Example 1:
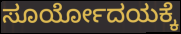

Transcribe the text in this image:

ಸೂರ್ಯೋದಯಕ್ಕೆ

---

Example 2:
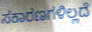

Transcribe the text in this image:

ಸಕಾರಣಗಳಿಲ್ಲದೆ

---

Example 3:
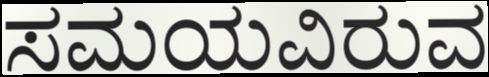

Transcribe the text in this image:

ಸಮಯವಿರುವ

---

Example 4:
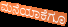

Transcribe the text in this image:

ಮನೆಯಾಕೆಗೂ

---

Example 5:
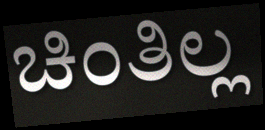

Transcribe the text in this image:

ಚಿಂತಿಲ್ಲ